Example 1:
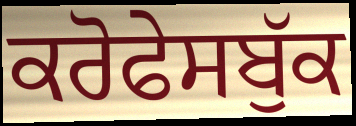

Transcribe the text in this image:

ਕਰੋਫੇਸਬੁੱਕ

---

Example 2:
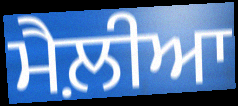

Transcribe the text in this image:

ਮੈਲ਼ੀਆ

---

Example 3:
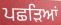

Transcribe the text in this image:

ਪਛੜਿਆਂ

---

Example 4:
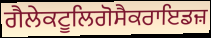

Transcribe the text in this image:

ਗੈਲੇਕਟੂਲਿਗੋਸੈਕਰਾਇਡਜ਼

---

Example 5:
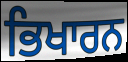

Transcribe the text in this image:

ਭਿਖਾਰਨ